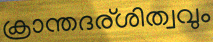
ക്രാന്തദര്ശിത്വവും